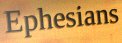
Ephesians